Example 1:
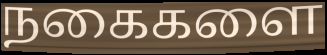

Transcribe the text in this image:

நகைகளை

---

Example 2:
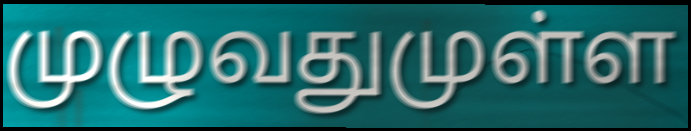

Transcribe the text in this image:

முழுவதுமுள்ள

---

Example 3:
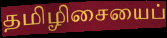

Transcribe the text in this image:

தமிழிசையைப்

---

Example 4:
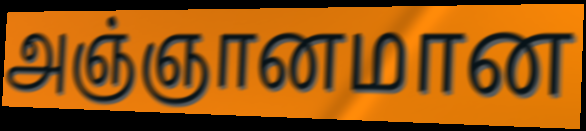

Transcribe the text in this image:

அஞ்ஞானமான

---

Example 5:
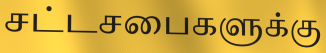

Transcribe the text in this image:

சட்டசபைகளுக்கு